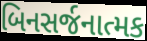
બિનસર્જનાત્મક